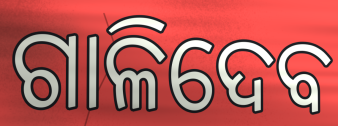
ଗାଳିଦେବ